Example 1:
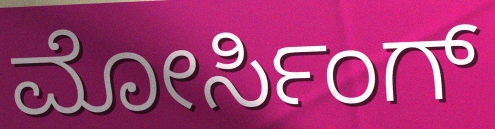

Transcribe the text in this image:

ಮೋರ್ಸಿಂಗ್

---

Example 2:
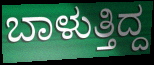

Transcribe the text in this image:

ಬಾಳುತ್ತಿದ್ದ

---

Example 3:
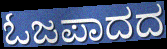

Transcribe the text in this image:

ಓಜಪಾದದ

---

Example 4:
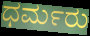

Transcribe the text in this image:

ಧರ್ಮರು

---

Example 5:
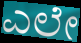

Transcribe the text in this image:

ಎಲೇ